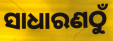
ସାଧାରଣଠୁଁ